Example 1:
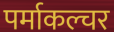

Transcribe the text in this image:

पर्माकल्चर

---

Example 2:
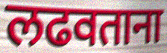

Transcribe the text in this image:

लढवताना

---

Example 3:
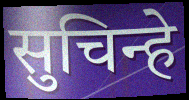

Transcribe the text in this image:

सुचिन्हे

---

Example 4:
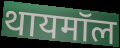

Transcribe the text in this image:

थायमॉल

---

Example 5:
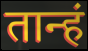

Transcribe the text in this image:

तान्हं